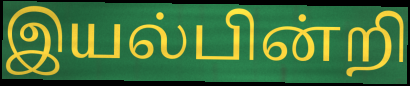
இயல்பின்றி